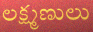
లక్ష్మణులు